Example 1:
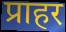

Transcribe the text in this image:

प्राहर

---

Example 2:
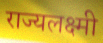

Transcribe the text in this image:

राज्यलक्ष्मी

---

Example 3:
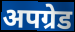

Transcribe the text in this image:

अपग्रेड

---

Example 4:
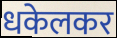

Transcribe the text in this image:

धकेलकर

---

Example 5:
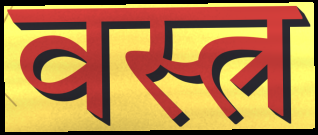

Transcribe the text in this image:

वस्‍त्र